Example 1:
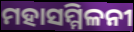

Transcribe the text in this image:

ମହାସମ୍ମିଳନୀ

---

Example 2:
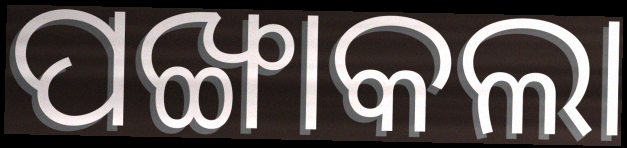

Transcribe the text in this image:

ପଙ୍ଖାକଲା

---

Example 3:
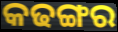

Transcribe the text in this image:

କଢଙ୍ଗର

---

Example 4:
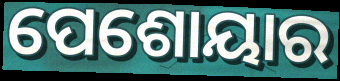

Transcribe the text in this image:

ପେଶୋୟାର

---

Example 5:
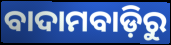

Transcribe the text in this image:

ବାଦାମବାଡ଼ିରୁ